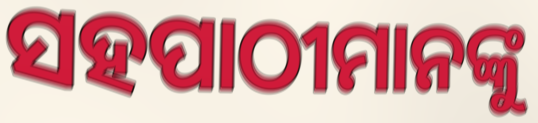
ସହପାଠୀମାନଙ୍କୁ